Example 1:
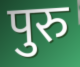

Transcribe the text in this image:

पुरु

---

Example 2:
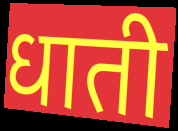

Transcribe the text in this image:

धाती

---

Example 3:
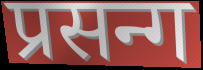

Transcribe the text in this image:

प्रसन्ग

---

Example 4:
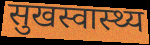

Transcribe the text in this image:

सुखस्वास्थ्य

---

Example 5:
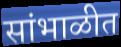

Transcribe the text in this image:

सांभाळीत